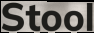
Stool